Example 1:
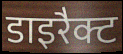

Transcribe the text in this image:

डाइरैक्ट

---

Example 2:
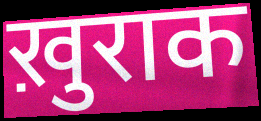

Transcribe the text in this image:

ख़ुराक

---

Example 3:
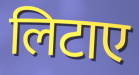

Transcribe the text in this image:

लिटाए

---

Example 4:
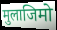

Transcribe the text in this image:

मुलाजिमो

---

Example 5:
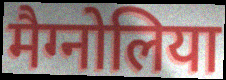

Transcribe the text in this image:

मैग्नोलिया